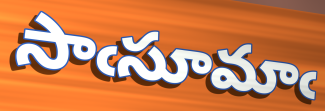
సాఁసూమాఁ